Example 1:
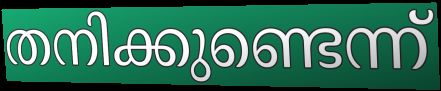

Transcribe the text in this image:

തനിക്കുണ്ടെന്ന്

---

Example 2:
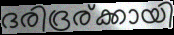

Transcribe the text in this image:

ദരിദ്രര്ക്കായി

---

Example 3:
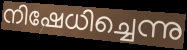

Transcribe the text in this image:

നിഷേധിച്ചെന്നു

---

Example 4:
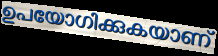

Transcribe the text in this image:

ഉപയോഗിക്കുകയാണ്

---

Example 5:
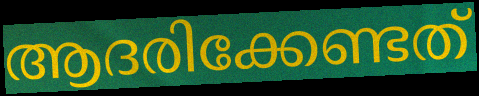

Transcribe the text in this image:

ആദരിക്കേണ്ടത്